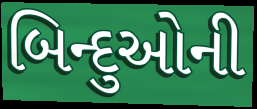
બિન્દુઓની